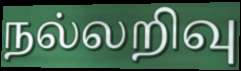
நல்லறிவு